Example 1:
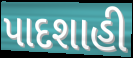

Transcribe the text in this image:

પાદશાહી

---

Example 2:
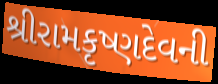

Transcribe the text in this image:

શ્રીરામકૃષ્ણદેવની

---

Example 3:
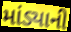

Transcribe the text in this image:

માંડ્યાની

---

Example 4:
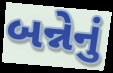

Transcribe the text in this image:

બન્નેનું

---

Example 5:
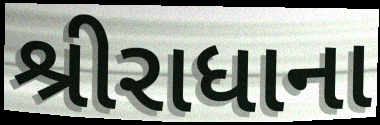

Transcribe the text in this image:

શ્રીરાધાના